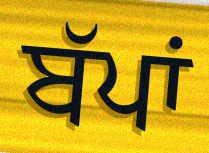
ਬੱਪਾਂ